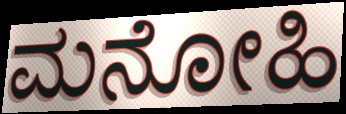
ಮನೋಹಿ